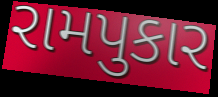
રામપુકાર